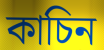
কাচিন